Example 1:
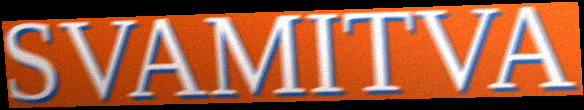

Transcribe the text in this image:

SVAMITVA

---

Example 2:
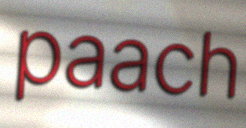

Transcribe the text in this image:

paach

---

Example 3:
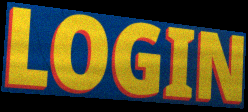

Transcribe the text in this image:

LOGIN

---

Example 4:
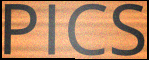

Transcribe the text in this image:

PICS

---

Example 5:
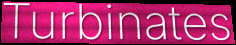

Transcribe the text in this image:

Turbinates